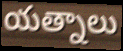
యత్నాలు